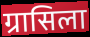
ग्रासिला